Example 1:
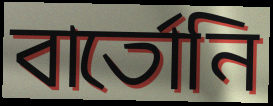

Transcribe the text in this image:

বার্তোনি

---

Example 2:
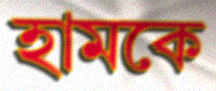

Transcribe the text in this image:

হামকে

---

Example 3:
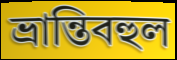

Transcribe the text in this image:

ভ্রান্তিবহুল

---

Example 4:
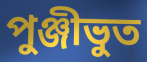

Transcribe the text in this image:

পুঞ্জীভুত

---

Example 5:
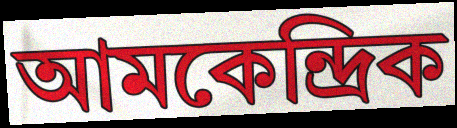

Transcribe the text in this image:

আমকেন্দ্রিক